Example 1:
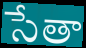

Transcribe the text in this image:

సేతా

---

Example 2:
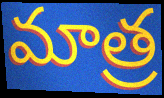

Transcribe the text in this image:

మాత్ర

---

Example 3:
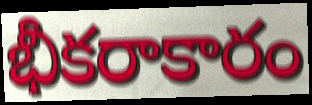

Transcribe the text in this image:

భీకరాకారం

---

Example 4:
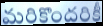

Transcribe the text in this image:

మరికొందరికీ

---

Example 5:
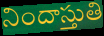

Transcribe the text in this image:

నిందాస్తుతి